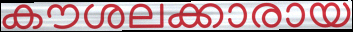
കൗശലക്കാരായ